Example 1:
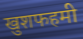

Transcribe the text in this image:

खुशफहमी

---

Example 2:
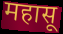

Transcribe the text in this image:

महासू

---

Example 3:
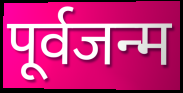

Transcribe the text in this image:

पूर्वजन्‍म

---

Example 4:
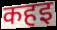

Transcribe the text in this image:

कहइ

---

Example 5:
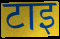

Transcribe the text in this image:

टाइ